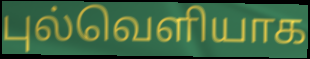
புல்வெளியாக